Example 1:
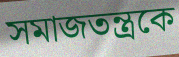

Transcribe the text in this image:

সমাজতন্ত্রকে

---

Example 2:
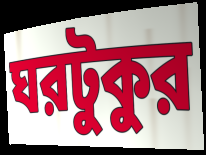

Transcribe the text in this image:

ঘরটুকুর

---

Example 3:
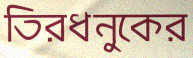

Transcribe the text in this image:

তিরধনুকের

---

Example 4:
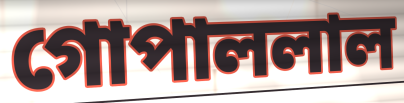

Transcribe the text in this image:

গোপাললাল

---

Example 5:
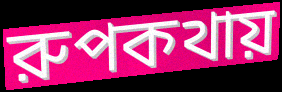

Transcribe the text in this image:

রুপকথায়